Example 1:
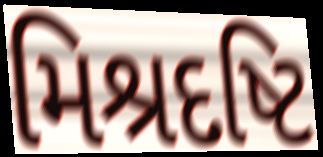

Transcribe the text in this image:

મિશ્રદષ્ટિ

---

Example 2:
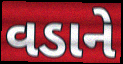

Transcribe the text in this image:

વડાને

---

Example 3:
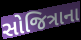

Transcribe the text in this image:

સોજિત્રાના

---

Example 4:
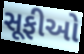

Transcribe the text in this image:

સૂફીઓ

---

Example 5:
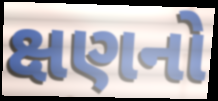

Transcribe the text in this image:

ક્ષણનો